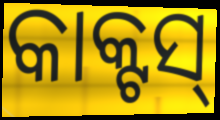
କାକ୍ଟସ୍